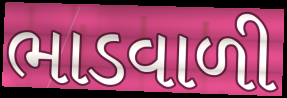
ભાડવાળી